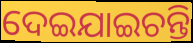
ଦେଇଯାଇଚନ୍ତି